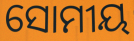
ସୋମୀୟ